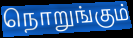
நொறுங்கும்